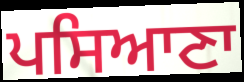
ਪਸਿਆਣਾ